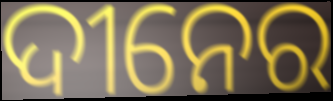
ଦୀନେର